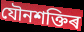
যৌনশক্তিৰ